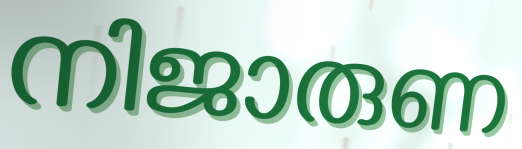
നിജാരുണ